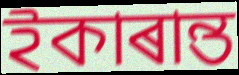
ইকাৰান্ত